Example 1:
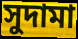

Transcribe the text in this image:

সুদামা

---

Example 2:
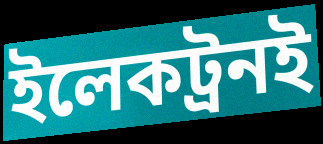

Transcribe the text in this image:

ইলেকট্রনই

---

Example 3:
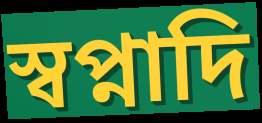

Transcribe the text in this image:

স্বপ্নাদি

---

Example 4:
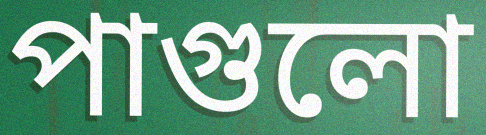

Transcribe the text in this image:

পাগুলো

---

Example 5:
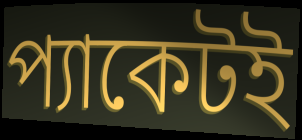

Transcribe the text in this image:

প্যাকেটই